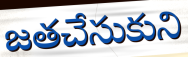
జతచేసుకుని